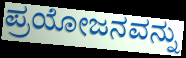
ಪ್ರಯೋಜನವನ್ನು